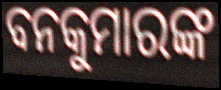
ବନକୁମାରଙ୍କ